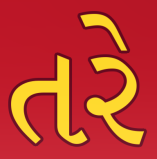
તરે